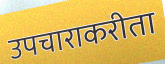
उपचाराकरीता